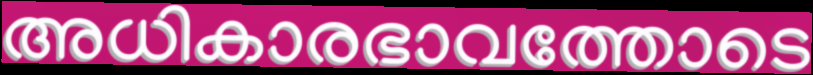
അധികാരഭാവത്തോടെ